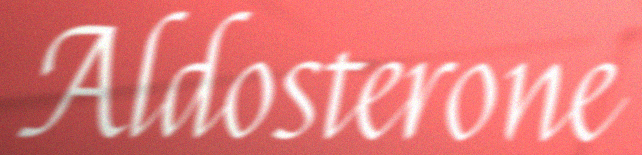
Aldosterone